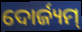
ଦୋର୍ଜ୍ୟମ୍